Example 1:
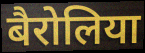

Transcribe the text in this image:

बैरोलिया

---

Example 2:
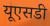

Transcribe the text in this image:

यूएसडी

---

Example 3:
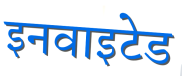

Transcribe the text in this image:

इनवाइटेड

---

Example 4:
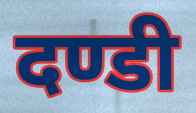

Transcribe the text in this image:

दण्डी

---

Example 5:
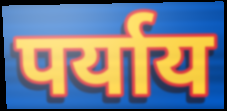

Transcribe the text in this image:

पर्याय